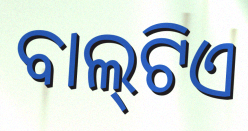
ବାଲ୍‍ଟିଏ